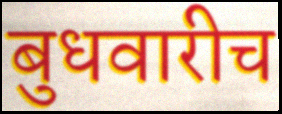
बुधवारीच